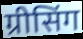
ग्रीसिंग